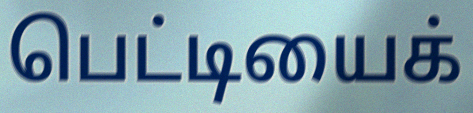
பெட்டியைக்